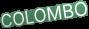
COLOMBO